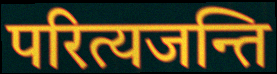
परित्यजन्ति